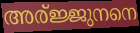
അര്ജ്ജുനനെ